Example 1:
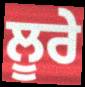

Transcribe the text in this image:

ਲੂਰੇ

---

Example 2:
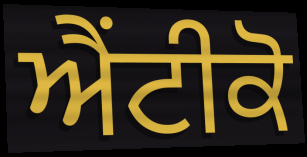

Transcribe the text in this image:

ਐਂਟੀਕੋ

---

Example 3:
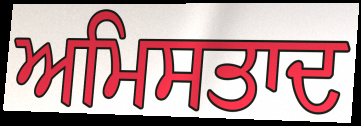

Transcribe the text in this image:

ਅਮਿਸਤਾਦ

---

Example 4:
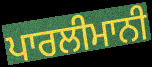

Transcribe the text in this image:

ਪਾਰਲੀਮਾਨੀ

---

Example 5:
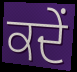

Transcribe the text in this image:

ਕਦੇਂ